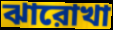
ঝারোখা